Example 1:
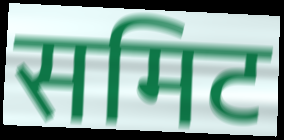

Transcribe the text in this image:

समिट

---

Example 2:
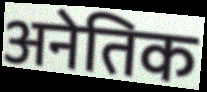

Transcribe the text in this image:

अनेतिक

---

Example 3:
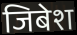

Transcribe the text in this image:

जिबेश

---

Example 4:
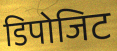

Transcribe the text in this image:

डिपोजिट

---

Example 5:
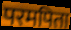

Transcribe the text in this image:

परमपिता